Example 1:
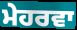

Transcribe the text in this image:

ਮੇਹਰਵਾ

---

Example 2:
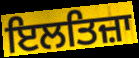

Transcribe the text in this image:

ਇਲਤਿਜ਼ਾ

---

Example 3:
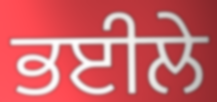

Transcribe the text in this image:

ਭਈਲੇ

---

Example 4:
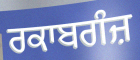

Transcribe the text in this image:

ਰਕਾਬਗੰਜ਼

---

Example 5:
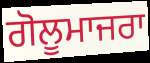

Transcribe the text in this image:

ਗੋਲੂਮਾਜਰਾ